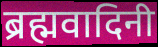
ब्रह्मवादिनी